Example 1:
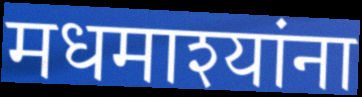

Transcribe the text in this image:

मधमाश्यांना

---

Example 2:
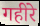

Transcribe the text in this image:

गहीरे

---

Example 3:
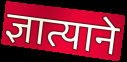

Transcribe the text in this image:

ज्ञात्याने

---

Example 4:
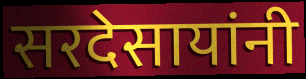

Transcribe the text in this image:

सरदेसायांनी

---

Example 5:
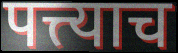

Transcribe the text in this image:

पत्त्याच